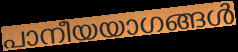
പാനീയയാഗങ്ങൾ